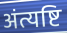
अंत्यष्टि